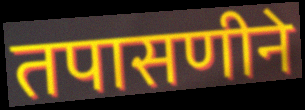
तपासणीने